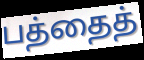
பத்தைத்